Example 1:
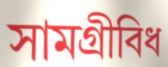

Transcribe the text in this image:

সামগ্ৰীবিধ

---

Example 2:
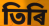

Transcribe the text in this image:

তিৰি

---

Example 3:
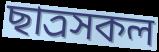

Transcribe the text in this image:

ছাত্ৰসকল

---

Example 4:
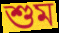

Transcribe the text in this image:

শুম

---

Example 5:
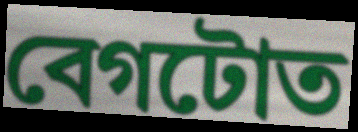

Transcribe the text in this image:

বেগটোত